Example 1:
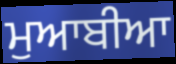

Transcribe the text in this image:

ਮੁਆਬੀਆ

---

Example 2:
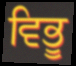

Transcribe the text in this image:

ਵਿਭੂ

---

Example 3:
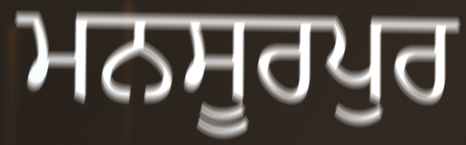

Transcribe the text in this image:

ਮਨਸੂਰਪੁਰ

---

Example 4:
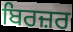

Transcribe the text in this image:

ਬਿਰਜ਼ਰ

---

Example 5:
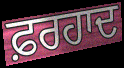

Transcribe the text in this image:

ਫ਼ਰਹਾਦ